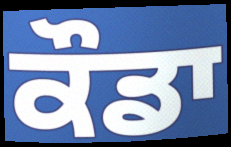
ਕੌਡਾ